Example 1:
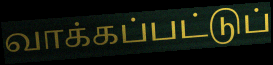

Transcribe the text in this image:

வாக்கப்பட்டுப்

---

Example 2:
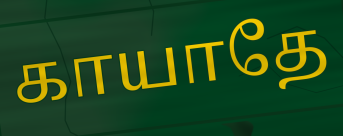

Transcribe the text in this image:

காயாதே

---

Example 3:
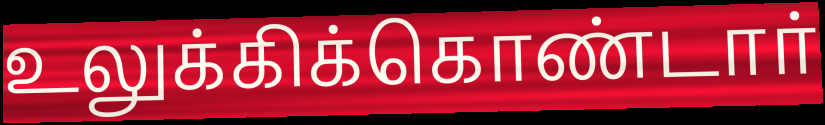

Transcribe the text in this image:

உலுக்கிக்கொண்டார்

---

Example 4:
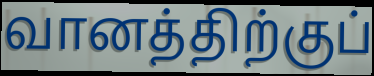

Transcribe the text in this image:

வானத்திற்குப்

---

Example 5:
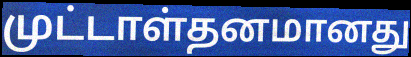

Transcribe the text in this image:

முட்டாள்தனமானது